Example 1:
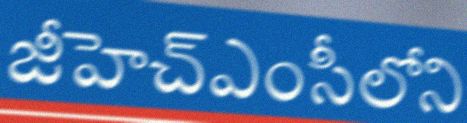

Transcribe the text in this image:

జీహెచ్ఎంసీలోని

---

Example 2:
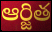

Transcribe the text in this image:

ఆర్జిత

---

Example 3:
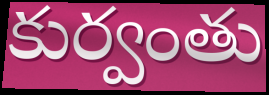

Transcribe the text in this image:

కుర్వంతు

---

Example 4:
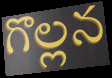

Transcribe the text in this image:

గొల్లన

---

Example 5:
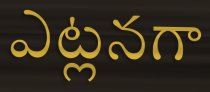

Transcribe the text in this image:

ఎట్లనగా